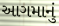
આગમાનું